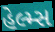
હેલ્મ્સ